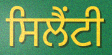
ਸਿਲੈਂਟੀ